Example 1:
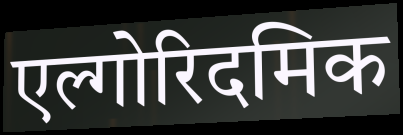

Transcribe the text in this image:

एल्गोरिदमिक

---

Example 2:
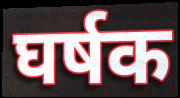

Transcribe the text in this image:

घर्षक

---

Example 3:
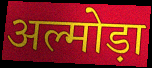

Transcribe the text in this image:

अल्मोड़ा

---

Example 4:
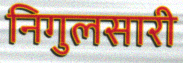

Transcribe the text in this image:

निगुलसारी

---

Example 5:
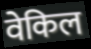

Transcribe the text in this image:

वेकिल